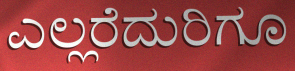
ಎಲ್ಲರೆದುರಿಗೂ